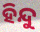
ହିନ୍ଦୁ